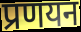
प्रणयन